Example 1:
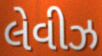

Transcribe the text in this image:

લેવીઝ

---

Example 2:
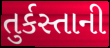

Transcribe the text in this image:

તુર્કસ્તાની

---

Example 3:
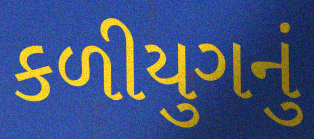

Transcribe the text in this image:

કળીયુગનું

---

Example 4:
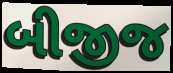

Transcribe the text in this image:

બીજીજ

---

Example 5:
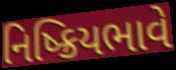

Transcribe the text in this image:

નિષ્ક્રિયભાવે